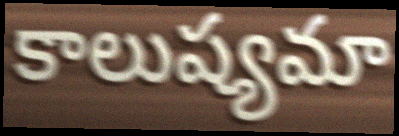
కాలుష్యమా